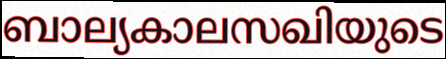
ബാല്യകാലസഖിയുടെ